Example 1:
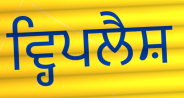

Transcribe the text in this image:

ਵ੍ਹਿਪਲੈਸ਼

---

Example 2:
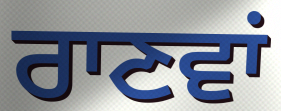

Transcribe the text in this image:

ਰਾਣਵਾਂ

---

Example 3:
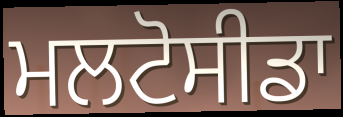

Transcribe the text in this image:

ਮਲਟੋਸੀਡਾ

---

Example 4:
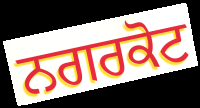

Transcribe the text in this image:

ਨਗਰਕੋਟ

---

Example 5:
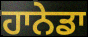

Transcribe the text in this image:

ਹਾਨੇਡਾ